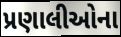
પ્રણાલીઓના